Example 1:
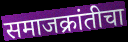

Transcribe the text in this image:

समाजक्रांतीचा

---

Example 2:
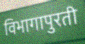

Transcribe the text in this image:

विभागापुरती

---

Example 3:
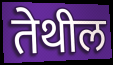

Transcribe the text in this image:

तेथील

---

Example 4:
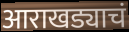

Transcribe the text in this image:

आराखड्याचं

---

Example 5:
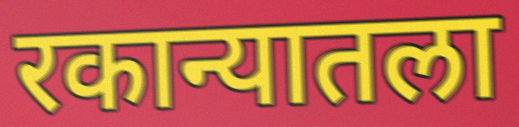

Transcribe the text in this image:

रकान्यातला